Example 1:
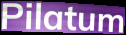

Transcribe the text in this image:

Pilatum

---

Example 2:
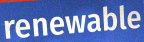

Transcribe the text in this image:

renewable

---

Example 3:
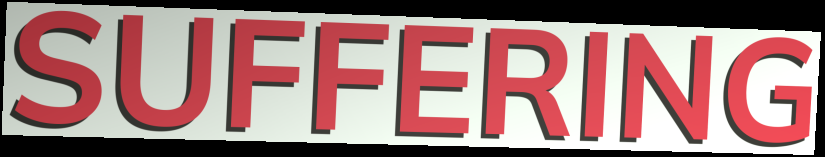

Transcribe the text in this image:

SUFFERING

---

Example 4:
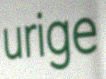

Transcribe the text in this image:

urige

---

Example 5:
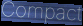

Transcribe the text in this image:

Compact